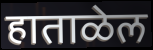
हाताळेल